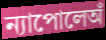
ন্যাপোলেঅঁ